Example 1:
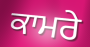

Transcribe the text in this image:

ਕਾਮਰੇ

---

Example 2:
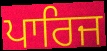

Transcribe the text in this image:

ਪਾਰਿਜ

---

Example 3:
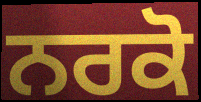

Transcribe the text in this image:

ਨਰਕੋ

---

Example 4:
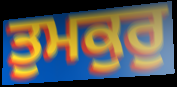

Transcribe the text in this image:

ਤੁਮਕੁਰੁ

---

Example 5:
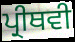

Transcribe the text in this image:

ਪ੍ਰੀਥਵੀ